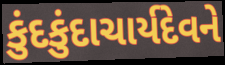
કુંદકુંદાચાર્યદેવને